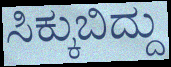
ಸಿಕ್ಕುಬಿದ್ದು